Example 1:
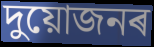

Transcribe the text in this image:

দুয়োজনৰ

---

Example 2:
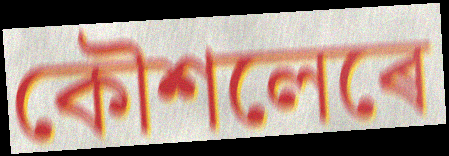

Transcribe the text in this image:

কৌশলেৰে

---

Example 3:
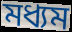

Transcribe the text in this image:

মধ্যম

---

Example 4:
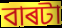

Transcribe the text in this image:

বাৰটা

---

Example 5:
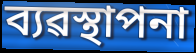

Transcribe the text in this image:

ব্যৱস্থাপনা